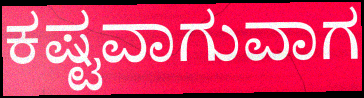
ಕಷ್ಟವಾಗುವಾಗ